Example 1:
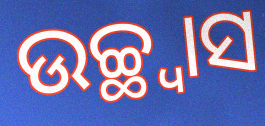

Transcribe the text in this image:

ଉଚ୍ଛ୍ୱାସ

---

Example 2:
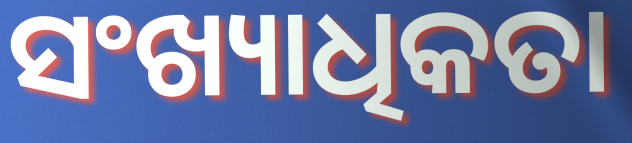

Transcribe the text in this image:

ସଂଖ୍ୟାଧିକତା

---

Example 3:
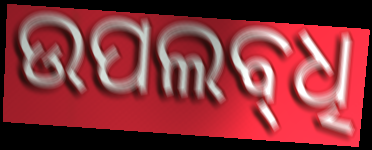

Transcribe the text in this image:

ଉପଲବ୍‌ଧି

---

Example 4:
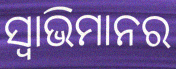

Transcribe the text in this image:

ସ୍ଵାଭିମାନର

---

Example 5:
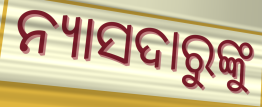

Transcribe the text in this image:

ନ୍ୟାସଦାରୁଙ୍କୁ